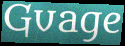
Guage